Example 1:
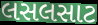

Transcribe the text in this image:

લસલસાટ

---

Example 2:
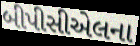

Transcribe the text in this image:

બીપીસીએલના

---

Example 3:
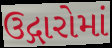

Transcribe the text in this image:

ઉદ્ગારોમાં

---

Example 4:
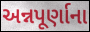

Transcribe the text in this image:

અન્નપૂર્ણાના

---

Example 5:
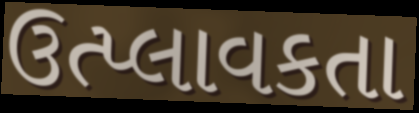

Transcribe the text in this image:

ઉત્પ્લાવકતા